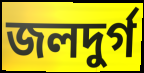
জলদুর্গ